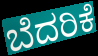
ಬೆದರಿಕೆ